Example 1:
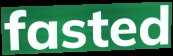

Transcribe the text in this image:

fasted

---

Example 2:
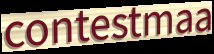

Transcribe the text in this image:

contestmaa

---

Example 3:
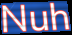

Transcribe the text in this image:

Nuh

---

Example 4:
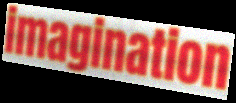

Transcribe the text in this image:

imagination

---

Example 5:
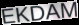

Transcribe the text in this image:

EKDAM